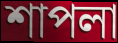
শাপলা